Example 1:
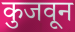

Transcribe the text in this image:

कुजवून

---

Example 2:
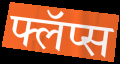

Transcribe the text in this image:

फ्लॅप्स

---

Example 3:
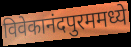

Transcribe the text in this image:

विवेकानंदपुरममध्ये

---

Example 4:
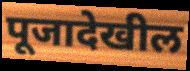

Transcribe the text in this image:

पूजादेखील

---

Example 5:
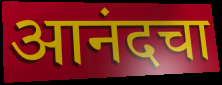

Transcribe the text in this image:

आनंदचा